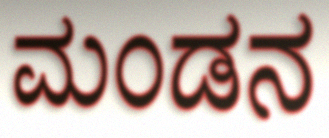
ಮಂಡನ